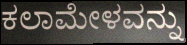
ಕಲಾಮೇಳವನ್ನು